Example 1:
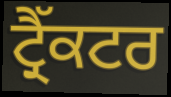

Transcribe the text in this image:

ਟ੍ਰੈੱਕਟਰ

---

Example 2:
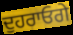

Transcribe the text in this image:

ਦੁਹਰਾਓਗੇ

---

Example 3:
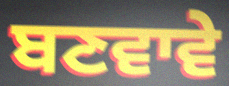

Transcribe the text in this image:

ਬਣਵਾਵੇ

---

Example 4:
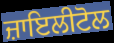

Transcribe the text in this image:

ਜ਼ਾਇਲੀਟੋਲ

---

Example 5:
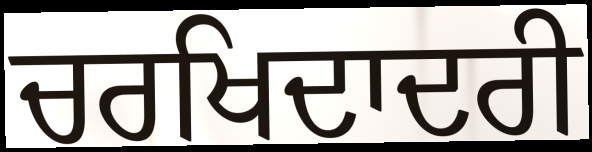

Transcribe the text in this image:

ਚਰਖਿਦਾਦਰੀ